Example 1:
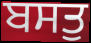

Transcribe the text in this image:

ਬਸਤੁ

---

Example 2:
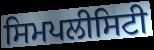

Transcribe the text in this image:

ਸਿਮਪਲੀਸਿਟੀ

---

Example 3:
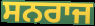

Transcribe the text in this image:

ਸਨਰਾਜ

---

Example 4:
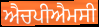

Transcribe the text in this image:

ਐਚਪੀਐਮਸੀ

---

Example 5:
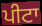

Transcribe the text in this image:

ਪੀਟਾ